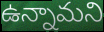
ఉన్నామని